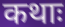
कथाः